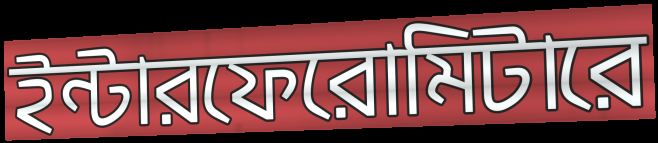
ইন্টারফেরোমিটারে